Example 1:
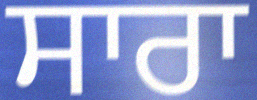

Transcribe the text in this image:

ਸਾਰਾ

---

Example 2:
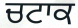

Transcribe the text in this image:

ਚਟਾਕ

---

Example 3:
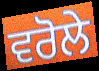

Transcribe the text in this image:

ਵਰੋਲੇ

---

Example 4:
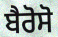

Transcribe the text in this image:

ਬੈਰੋਸੋ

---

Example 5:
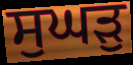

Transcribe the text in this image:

ਸੁਘੜੁ